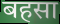
बहसा